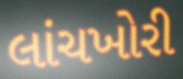
લાંચખોરી